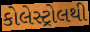
કોલેસ્ટ્રોલથી